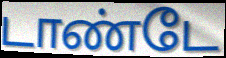
டாண்டே